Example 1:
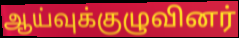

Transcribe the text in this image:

ஆய்வுக்குழுவினர்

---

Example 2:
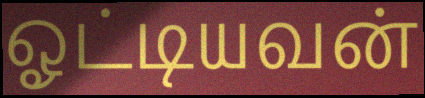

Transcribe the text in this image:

ஓட்டியவன்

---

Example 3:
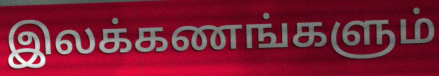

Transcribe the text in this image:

இலக்கணங்களும்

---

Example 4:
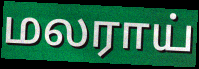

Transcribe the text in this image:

மலராய்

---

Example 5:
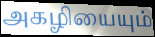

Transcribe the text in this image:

அகழியையும்